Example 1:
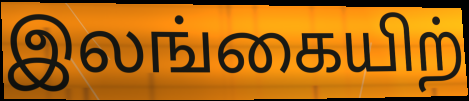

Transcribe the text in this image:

இலங்கையிற்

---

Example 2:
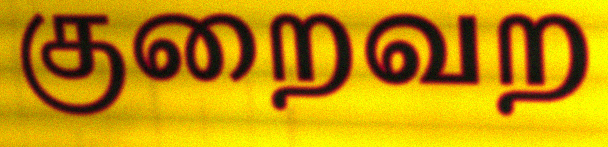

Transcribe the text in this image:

குறைவற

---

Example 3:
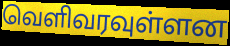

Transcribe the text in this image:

வெளிவரவுள்ளன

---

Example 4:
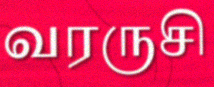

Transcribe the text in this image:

வரருசி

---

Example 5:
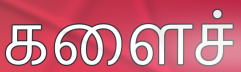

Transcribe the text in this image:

களைச்